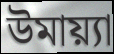
উমায়্যা